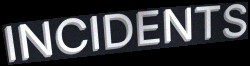
INCIDENTS